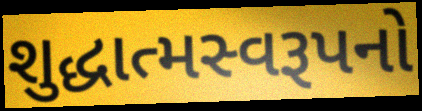
શુદ્ધાત્મસ્વરૂપનો